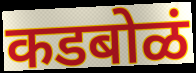
कडबोळं